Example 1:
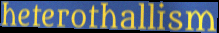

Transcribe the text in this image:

heterothallism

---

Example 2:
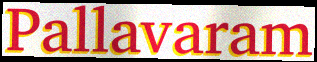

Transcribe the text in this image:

Pallavaram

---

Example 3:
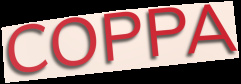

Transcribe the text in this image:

COPPA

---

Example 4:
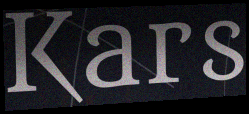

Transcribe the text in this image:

Kars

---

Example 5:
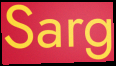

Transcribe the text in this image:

Sarg